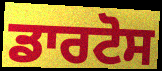
ਡਾਰਟੋਸ